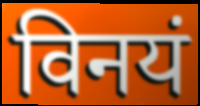
विनयं